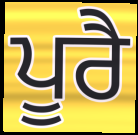
ਪੂਰੈ